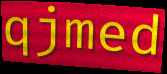
qjmed